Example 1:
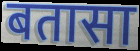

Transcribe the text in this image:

बतासा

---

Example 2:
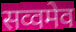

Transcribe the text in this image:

सव्वमेव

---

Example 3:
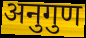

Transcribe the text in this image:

अनुगुण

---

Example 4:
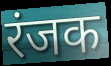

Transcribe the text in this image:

रंजक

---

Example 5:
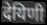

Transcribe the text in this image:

देयिणी